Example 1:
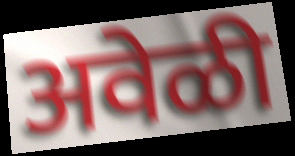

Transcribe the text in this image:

अवेळी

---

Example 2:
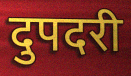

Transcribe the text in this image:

दुपदरी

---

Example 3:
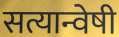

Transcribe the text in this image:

सत्यान्वेषी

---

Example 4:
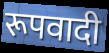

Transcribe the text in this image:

रूपवादी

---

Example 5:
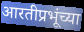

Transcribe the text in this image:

आरतीप्रभूंच्या